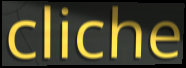
cliche